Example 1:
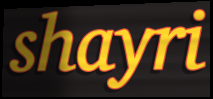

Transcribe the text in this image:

shayri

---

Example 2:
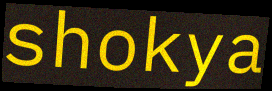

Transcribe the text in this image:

shokya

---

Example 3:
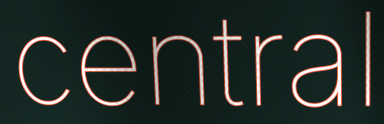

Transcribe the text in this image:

central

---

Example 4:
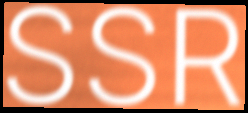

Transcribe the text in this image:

SSR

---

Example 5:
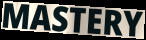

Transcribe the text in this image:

MASTERY